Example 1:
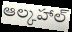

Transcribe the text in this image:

ఆల్కహాల్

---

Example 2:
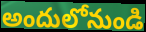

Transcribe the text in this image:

అందులోనుండి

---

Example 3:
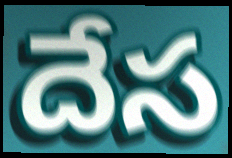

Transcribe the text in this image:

దేస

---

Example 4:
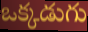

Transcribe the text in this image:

ఒక్కడుగు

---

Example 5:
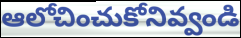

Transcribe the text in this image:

ఆలోచించుకోనివ్వండి